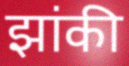
झांकी